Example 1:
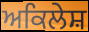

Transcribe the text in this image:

ਅਕਿਲੇਸ਼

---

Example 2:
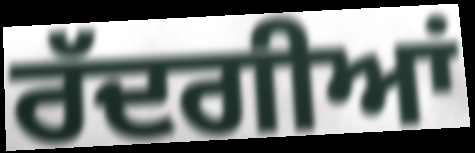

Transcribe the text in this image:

ਰੱਦਗੀਆਂ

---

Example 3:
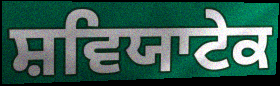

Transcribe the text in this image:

ਸ਼ਵਿਯਾਟੇਕ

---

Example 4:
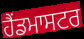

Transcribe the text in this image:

ਹੈਂਡਮਾਸਟਰ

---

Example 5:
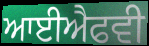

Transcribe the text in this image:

ਆਈਐਫਵੀ